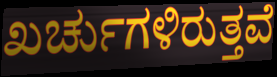
ಖರ್ಚುಗಳಿರುತ್ತವೆ